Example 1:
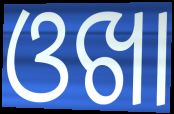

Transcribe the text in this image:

ଓଖା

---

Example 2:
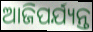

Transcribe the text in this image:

ଆଜିପର୍ଯ୍ୟନ୍ତ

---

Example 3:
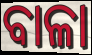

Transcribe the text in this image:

ବାଳା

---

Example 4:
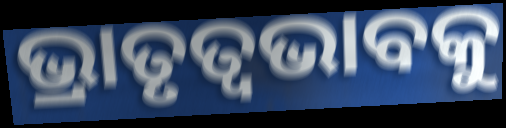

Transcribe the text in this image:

ଭ୍ରାତୃତ୍ୱଭାବକୁ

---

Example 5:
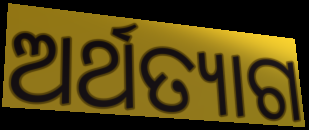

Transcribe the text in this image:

ଅର୍ଥତ୍ୟାଗ